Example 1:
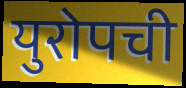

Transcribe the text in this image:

युरोपची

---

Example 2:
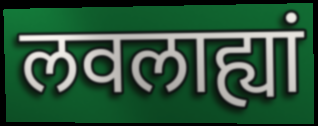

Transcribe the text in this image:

लवलाह्यां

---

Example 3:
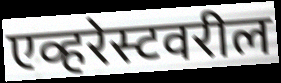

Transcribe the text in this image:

एव्हरेस्टवरील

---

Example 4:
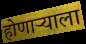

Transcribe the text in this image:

होणाऱ्याला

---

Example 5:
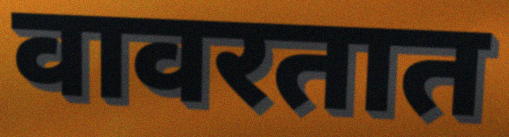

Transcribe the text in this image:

वावरतात